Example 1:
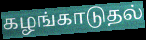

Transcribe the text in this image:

கழங்காடுதல்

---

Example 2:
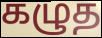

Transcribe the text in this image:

கழுத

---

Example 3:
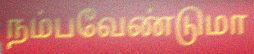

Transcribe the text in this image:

நம்பவேண்டுமா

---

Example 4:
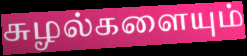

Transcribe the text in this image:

சுழல்களையும்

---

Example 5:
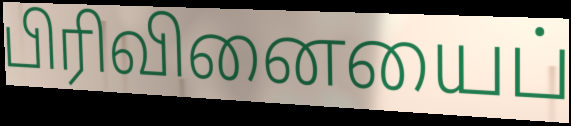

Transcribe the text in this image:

பிரிவினையைப்